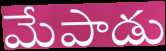
మేపాడు